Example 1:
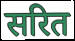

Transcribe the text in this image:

सरित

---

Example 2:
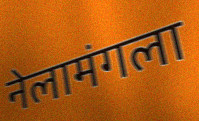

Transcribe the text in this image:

नेलामंगला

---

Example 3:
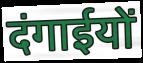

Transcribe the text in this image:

दंगाईयों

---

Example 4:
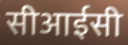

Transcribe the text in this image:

सीआईसी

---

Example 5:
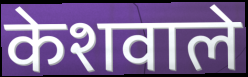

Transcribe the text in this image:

केशवाले